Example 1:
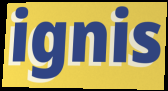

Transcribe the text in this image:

ignis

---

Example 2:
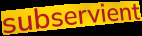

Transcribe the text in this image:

subservient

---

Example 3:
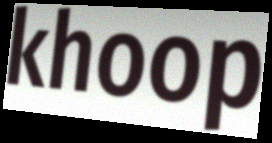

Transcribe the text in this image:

khoop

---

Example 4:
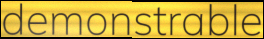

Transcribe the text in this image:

demonstrable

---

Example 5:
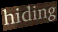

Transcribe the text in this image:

hiding